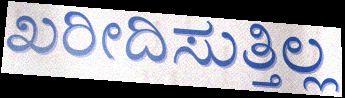
ಖರೀದಿಸುತ್ತಿಲ್ಲ